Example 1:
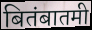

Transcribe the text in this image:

बितंबातमी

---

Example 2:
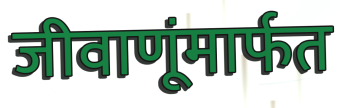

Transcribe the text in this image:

जीवाणूंमार्फत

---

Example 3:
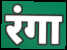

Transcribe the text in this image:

रंगा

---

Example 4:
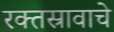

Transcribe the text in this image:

रक्तस्रावाचे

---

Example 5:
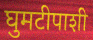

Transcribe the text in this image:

घुमटीपाशी